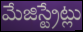
మేజిస్ట్రేట్లు